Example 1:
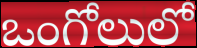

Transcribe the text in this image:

ఒంగోలులో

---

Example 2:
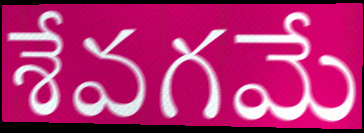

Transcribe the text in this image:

శేవగమే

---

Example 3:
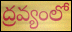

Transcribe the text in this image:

ద్రవ్యంలో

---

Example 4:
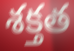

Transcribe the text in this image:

శక్తత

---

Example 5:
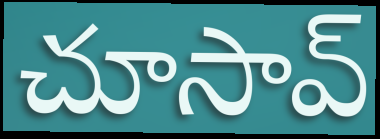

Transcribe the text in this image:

చూసావ్